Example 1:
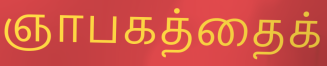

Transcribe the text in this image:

ஞாபகத்தைக்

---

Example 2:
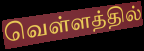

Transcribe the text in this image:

வெள்ளத்தில்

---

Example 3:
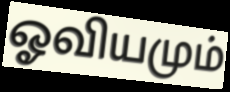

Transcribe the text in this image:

ஓவியமும்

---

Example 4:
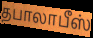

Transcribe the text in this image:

தபாலாபீஸ்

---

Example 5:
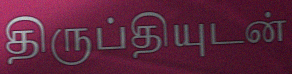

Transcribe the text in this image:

திருப்தியுடன்